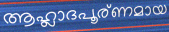
ആഹ്ലാദപൂര്ണമായ